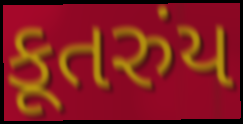
કૂતરુંય